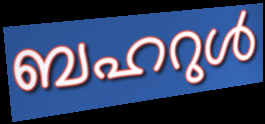
ബഹറുൾ